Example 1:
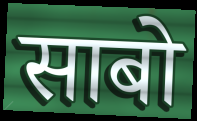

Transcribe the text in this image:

साबो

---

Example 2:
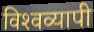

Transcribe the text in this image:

विश्‍वव्यापी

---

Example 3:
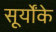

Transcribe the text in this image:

सूर्योंके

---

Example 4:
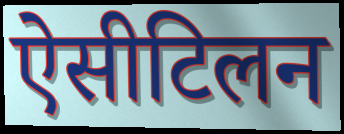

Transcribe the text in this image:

ऐसीटिलन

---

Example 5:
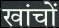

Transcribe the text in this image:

खांचों